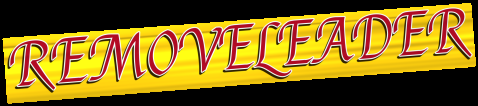
REMOVELEADER